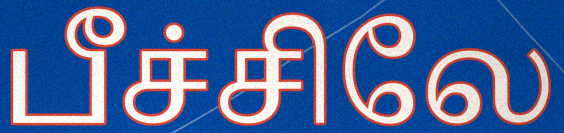
பீச்சிலே